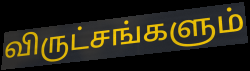
விருட்சங்களும்